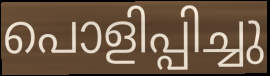
പൊളിപ്പിച്ചു